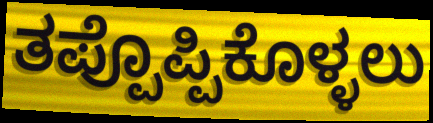
ತಪ್ಪೊಪ್ಪಿಕೊಳ್ಳಲು